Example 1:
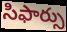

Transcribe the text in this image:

సిఫార్సు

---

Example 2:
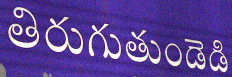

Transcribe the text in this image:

తిరుగుతుండెడి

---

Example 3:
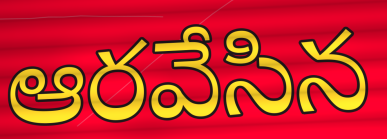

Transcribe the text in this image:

ఆరవేసిన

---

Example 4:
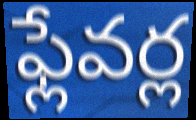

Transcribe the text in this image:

ఫ్లేవర్ల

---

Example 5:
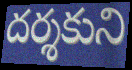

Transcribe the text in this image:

దర్శకుని